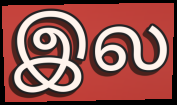
இல